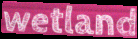
wetland